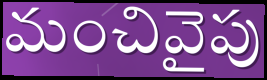
మంచివైపు